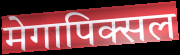
मेगापिक्सल